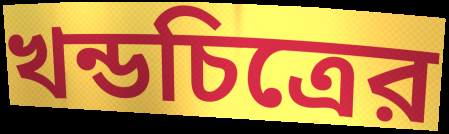
খন্ডচিত্রের